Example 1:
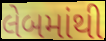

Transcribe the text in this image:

લેબમાંથી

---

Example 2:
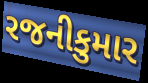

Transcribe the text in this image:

રજનીકુમાર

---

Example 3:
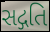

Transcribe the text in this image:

સદ્ગતિ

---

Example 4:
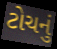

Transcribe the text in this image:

ટોચનું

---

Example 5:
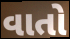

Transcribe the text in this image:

વાતો